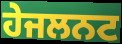
ਹੇਜਲਨਟ